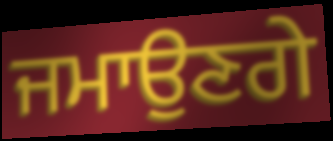
ਜਮਾਉਣਗੇ